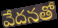
వేదనతో